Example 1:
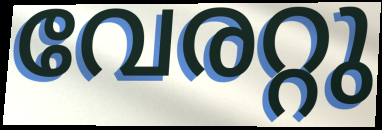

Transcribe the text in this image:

വേരറ്റു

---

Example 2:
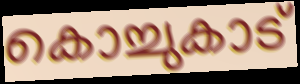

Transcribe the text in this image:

കൊച്ചുകാട്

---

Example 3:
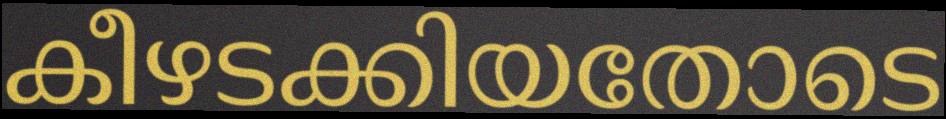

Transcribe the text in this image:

കീഴടക്കിയതോടെ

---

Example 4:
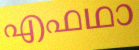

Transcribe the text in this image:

എഫഥാ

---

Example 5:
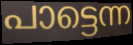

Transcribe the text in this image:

പാട്ടെന്ന